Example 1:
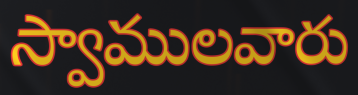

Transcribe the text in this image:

స్వాములవారు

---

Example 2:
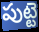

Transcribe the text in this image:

పుట్టె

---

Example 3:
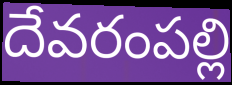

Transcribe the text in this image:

దేవరంపల్లి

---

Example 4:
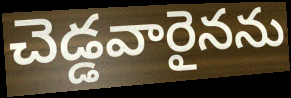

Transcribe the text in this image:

చెడ్డవారైనను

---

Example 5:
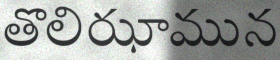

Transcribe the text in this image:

తొలిఝామున